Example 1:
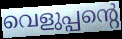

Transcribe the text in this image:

വെളുപ്പന്റെ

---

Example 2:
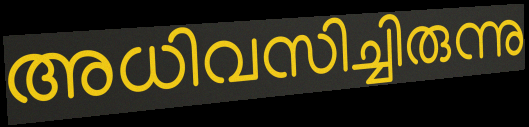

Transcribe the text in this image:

അധിവസിച്ചിരുന്നു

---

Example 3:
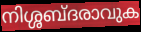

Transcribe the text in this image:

നിശ്ശബ്ദരാവുക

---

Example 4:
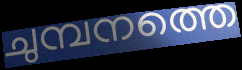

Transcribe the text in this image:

ചുമ്പനത്തെ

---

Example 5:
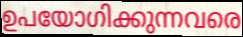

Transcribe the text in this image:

ഉപയോഗിക്കുന്നവരെ